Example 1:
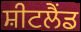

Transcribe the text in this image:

ਸ਼ੀਟਲੈਂਡ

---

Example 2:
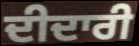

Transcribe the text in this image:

ਦੀਦਾਰੀ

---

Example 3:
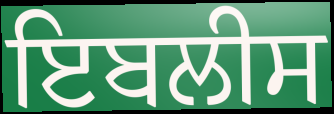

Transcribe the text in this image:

ਇਬਲੀਸ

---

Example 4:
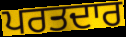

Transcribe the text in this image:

ਪਰਤਦਾਰ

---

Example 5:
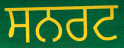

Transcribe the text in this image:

ਸਨਰਟ